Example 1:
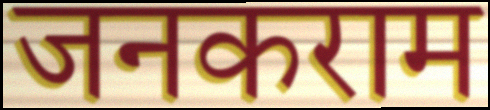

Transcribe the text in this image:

जनकराम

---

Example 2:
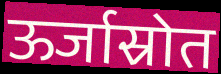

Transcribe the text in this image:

ऊर्जास्रोत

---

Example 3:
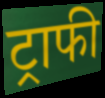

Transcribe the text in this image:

ट्राफी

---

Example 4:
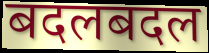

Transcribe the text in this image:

बदलबदल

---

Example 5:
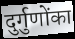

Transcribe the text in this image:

दुर्गुणोंका